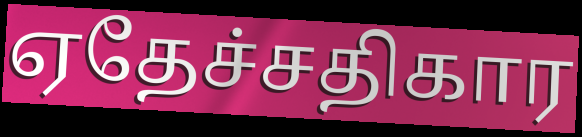
ஏதேச்சதிகார